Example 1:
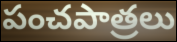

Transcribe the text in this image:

పంచపాత్రలు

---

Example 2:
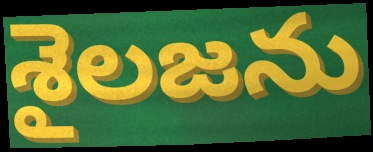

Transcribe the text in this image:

శైలజను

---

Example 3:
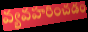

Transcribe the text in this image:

వ్యవహరించడం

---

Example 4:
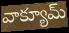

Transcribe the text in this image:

వాక్యూమ్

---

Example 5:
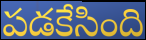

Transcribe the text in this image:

పడకేసింది